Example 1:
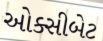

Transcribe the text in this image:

ઓક્સીબેટ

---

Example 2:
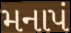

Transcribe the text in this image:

મનાપં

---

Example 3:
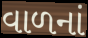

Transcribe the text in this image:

વાળનાં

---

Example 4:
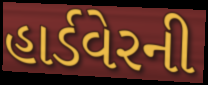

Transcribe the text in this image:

હાર્ડવેરની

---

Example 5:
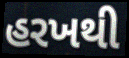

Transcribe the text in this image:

હરખથી